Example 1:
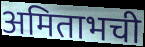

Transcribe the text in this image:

अमिताभची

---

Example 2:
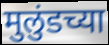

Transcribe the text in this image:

मुलुंडच्या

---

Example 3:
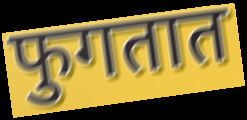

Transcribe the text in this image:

फुगतात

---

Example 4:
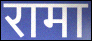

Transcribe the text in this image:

रामा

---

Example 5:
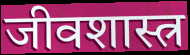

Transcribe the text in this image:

जीवशास्त्र